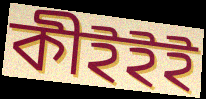
কীইইই